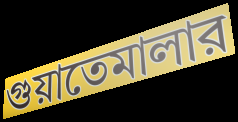
গুয়াতেমালার